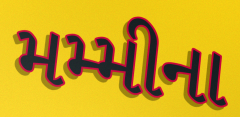
મમ્મીના